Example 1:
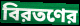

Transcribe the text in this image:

বিরতণের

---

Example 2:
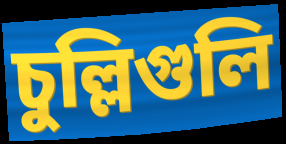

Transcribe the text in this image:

চুল্লিগুলি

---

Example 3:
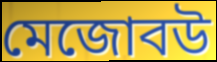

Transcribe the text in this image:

মেজোবউ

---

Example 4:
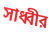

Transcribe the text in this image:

সাধ্বীর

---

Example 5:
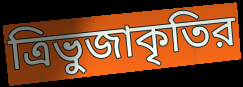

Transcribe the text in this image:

ত্রিভুজাকৃতির